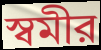
স্বমীর